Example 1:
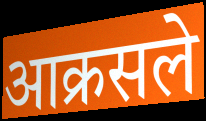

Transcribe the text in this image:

आक्रसले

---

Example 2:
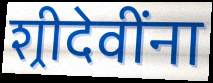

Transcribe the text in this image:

श्रीदेवींना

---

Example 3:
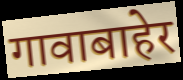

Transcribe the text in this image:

गावाबाहेर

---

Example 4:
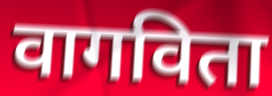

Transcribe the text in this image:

वागविता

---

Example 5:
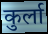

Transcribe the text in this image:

कुर्ला